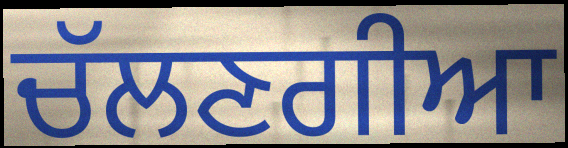
ਚੱਲਣਗੀਆ